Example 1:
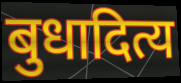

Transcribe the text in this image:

बुधादित्य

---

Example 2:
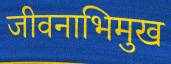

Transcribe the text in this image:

जीवनाभिमुख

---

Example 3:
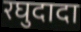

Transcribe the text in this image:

रघुदादा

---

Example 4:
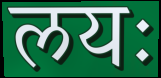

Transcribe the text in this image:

लयः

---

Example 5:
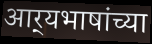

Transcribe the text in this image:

आर्यभाषांच्या